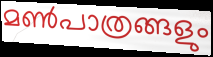
മൺപാത്രങ്ങളും